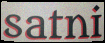
satni